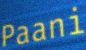
Paani